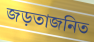
জড়তাজনিত